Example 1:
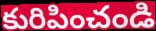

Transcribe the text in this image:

కురిపించండి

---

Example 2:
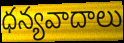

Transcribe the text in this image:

ధన్యవాదాలు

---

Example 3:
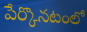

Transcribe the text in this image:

పేర్కొనటంలో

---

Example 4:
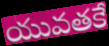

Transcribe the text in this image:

యువతకే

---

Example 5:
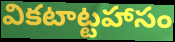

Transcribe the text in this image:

వికటాట్టహాసం